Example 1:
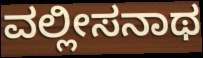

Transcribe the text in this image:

ವಲ್ಲೀಸನಾಥ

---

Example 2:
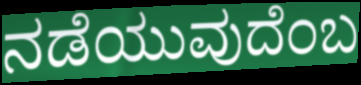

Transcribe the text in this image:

ನಡೆಯುವುದೆಂಬ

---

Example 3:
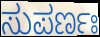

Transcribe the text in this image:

ಸುಪರ್ಣಃ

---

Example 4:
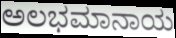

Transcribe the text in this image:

ಅಲಭಮಾನಾಯ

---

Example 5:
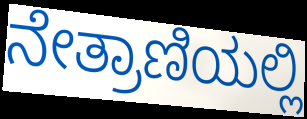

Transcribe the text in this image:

ನೇತ್ರಾಣಿಯಲ್ಲಿ